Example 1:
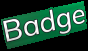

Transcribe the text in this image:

Badge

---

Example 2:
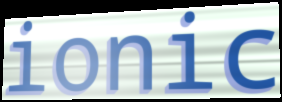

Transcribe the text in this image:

ionic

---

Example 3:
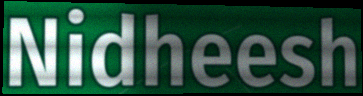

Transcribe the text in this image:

Nidheesh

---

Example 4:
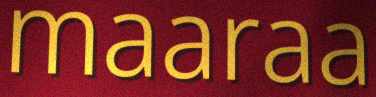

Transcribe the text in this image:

maaraa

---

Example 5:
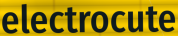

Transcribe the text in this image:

electrocute